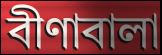
বীণাবালা